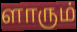
ளாரும்